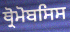
ਥ੍ਰੋਮੋਬਸਿਸ